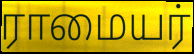
ராமையர்